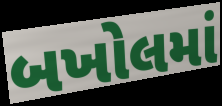
બખોલમાં